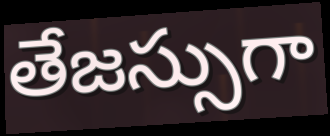
తేజస్సుగా